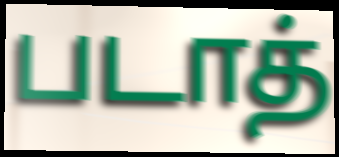
படாத்